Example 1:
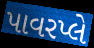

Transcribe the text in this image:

પાવરપ્લે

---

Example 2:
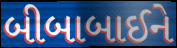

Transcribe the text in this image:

બીબાબાઈને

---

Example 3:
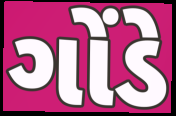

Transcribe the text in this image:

ગોંડે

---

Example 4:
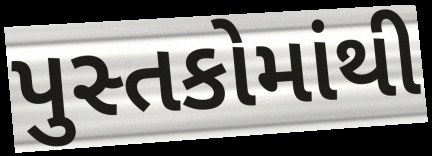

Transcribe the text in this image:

પુસ્તકોમાંથી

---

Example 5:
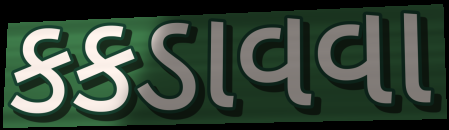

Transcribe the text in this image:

કકડાવવા